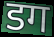
डग